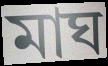
মাঘ